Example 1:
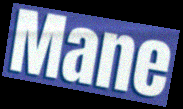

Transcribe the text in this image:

Mane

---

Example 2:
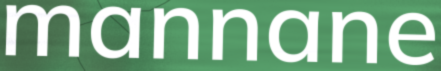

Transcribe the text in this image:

mannane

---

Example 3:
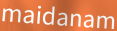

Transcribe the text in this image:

maidanam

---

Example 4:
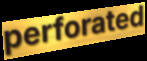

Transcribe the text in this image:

perforated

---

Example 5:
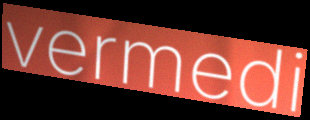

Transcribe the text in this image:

vermedi